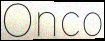
Onco